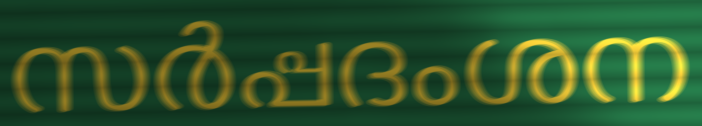
സർപ്പദംശന